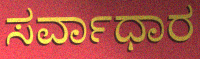
ಸರ್ವಾಧಾರ